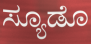
ಸ್ಯೂಡೊ